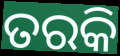
ତରକି